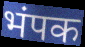
भंपक